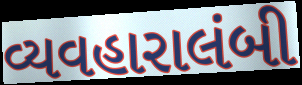
વ્યવહારાલંબી